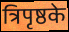
त्रिपृष्ठके